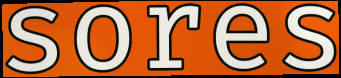
sores